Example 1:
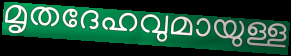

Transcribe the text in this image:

മൃതദേഹവുമായുള്ള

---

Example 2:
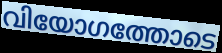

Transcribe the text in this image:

വിയോഗത്തോടെ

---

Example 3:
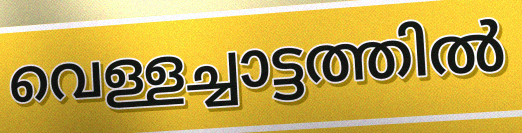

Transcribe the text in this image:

വെള്ളച്ചാട്ടത്തിൽ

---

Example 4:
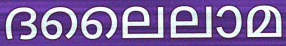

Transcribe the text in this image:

ദലൈലാമ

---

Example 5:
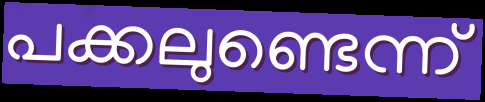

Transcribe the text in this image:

പക്കലുണ്ടെന്ന്